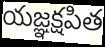
యజ్ఞక్షపిత